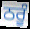
ਠਰੂੰ